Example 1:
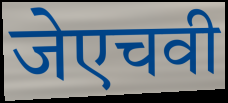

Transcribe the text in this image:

जेएचवी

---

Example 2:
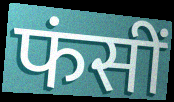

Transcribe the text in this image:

फंसीं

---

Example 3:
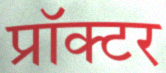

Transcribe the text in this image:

प्रॉक्टर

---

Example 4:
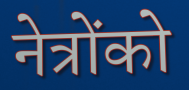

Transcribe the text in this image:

नेत्रोंको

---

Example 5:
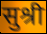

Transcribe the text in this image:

सुश्री